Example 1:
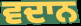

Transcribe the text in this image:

ਵਦਾਨ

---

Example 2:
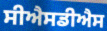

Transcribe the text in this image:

ਸੀਐਸਡੀਐਸ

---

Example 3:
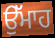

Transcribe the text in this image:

ਉੱਮਾਹ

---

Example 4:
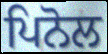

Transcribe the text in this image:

ਪਿਨੋਲ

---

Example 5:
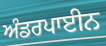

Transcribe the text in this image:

ਅੰਡਰਪਾਈਨ